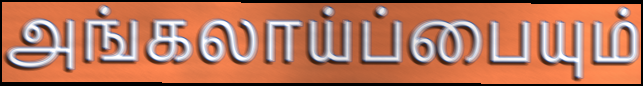
அங்கலாய்ப்பையும்